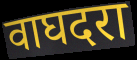
वाघदरा